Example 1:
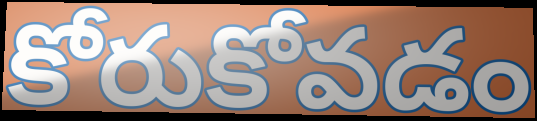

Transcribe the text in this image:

కోరుకోవడం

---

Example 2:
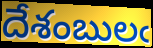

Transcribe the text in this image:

దేశంబులఁ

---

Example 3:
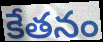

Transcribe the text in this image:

కేతనం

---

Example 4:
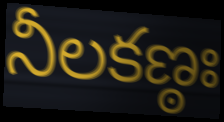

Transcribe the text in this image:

నీలకణ్ఠః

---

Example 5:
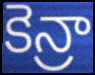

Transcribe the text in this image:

కెన్రా